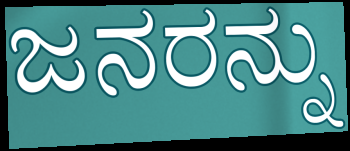
ಜನರನ್ನು